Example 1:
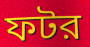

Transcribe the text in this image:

ফটর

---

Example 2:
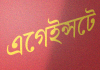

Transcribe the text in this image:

এগেইন্সটে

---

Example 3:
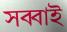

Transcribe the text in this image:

সব্বাই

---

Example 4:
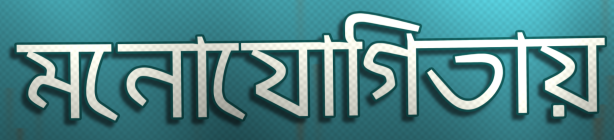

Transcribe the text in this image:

মনোযোগিতায়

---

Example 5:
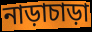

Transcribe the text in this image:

নাড়াচাড়া